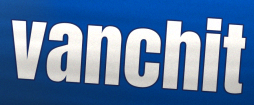
vanchit